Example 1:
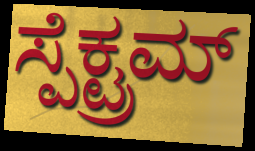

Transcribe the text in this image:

ಸ್ಪೆಕ್ಟ್ರಮ್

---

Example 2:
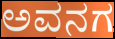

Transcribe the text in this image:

ಅವನಗ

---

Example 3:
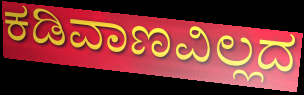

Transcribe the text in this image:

ಕಡಿವಾಣವಿಲ್ಲದ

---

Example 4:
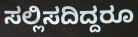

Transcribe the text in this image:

ಸಲ್ಲಿಸದಿದ್ದರೂ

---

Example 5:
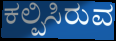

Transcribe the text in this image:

ಕಲ್ಪಿಸಿರುವ